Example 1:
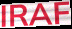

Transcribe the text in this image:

IRAF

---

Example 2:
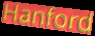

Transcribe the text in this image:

Hanford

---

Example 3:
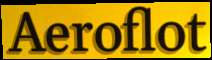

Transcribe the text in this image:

Aeroflot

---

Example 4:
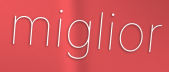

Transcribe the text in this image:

miglior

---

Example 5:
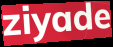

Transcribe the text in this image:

ziyade